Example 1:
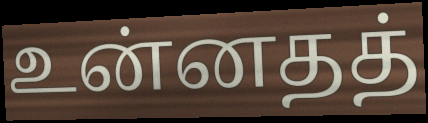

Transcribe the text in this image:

உன்னதத்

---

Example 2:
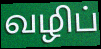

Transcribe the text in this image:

வழிப்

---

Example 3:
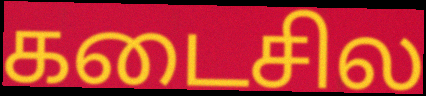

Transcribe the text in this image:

கடைசில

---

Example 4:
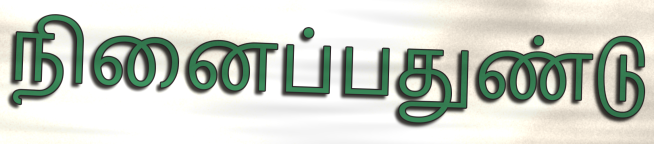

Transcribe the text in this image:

நினைப்பதுண்டு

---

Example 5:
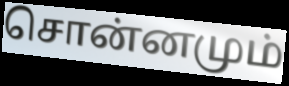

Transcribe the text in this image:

சொன்னமும்